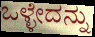
ಒಳ್ಳೇದನ್ನು